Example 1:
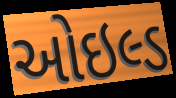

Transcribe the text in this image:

ઓઇલ્ડ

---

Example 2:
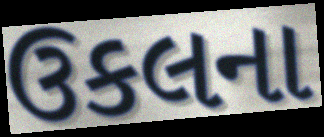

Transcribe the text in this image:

ઉકલના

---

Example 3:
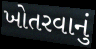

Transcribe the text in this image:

ખોતરવાનું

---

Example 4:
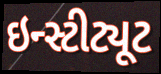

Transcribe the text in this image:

ઇન્સ્ટીટ્યૂટ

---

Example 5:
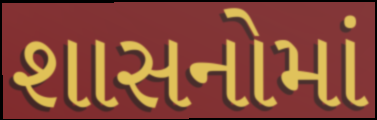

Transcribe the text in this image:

શાસનોમાં